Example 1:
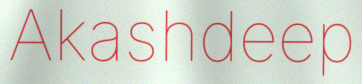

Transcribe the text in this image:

Akashdeep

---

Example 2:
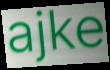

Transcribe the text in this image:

ajke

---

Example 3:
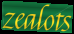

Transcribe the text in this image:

zealots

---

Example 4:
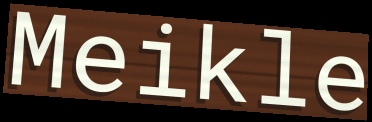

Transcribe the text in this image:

Meikle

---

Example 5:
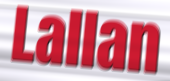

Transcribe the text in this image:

Lallan